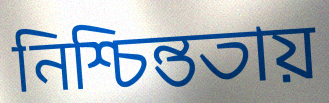
নিশ্চিন্ততায়